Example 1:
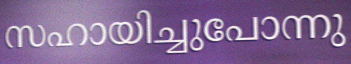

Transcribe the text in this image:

സഹായിച്ചുപോന്നു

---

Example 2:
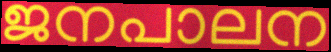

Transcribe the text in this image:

ജനപാലന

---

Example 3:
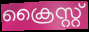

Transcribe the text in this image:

ക്രൈസ്റ്റ്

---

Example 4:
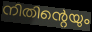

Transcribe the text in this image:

നിതിന്റെയും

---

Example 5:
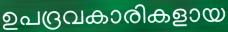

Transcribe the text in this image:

ഉപദ്രവകാരികളായ